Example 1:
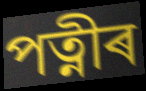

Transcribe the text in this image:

পত্নীৰ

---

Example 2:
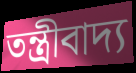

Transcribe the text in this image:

তন্ত্ৰীবাদ্য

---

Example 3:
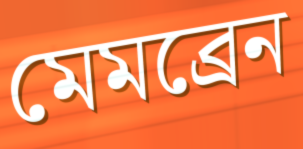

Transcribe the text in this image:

মেমব্ৰেন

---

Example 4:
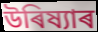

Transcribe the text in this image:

উৰিষ্যাৰ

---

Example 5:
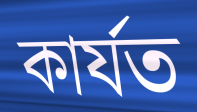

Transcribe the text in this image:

কাৰ্যত